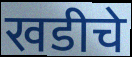
खडीचे